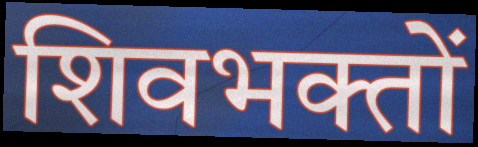
शिवभक्तों